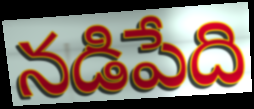
నడిపేది